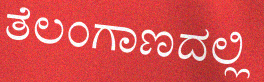
ತೆಲಂಗಾಣದಲ್ಲಿ